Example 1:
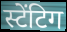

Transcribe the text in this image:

स्टेंटिग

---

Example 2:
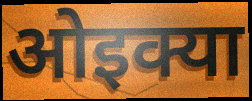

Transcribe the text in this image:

ओइक्या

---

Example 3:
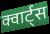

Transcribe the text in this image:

क्वार्ट्स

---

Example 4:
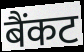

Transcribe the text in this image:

बैंकट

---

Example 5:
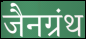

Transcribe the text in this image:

जैनग्रंथ